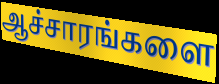
ஆச்சாரங்களை